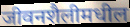
जीवनशैलीमधील